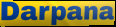
Darpana